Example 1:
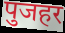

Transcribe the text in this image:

पुजहर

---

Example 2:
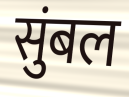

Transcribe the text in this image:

सुंबल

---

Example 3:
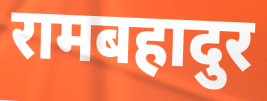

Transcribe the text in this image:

रामबहादुर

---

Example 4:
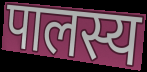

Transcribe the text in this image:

पालस्य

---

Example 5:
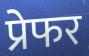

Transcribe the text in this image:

प्रेफर